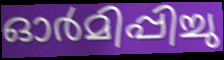
ഓർമിപ്പിച്ചു